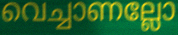
വെച്ചാണല്ലോ